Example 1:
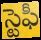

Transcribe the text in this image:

స్టెఫీ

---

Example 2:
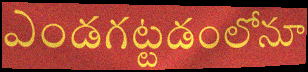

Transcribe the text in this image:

ఎండగట్టడంలోనూ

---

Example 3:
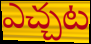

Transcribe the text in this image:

ఎచ్చట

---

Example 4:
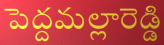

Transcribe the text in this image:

పెద్దమల్లారెడ్డి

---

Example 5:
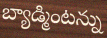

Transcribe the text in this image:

బ్యాడ్మింటన్ను